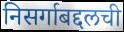
निसर्गाबद्दलची